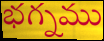
భగ్నము